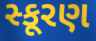
સ્કૂરણ